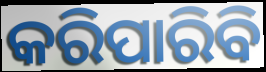
କରିପାରିବି